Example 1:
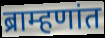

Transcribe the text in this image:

ब्राम्हणांत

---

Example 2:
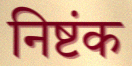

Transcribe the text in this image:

निष्टंक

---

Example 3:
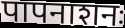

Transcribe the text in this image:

पापनाशनः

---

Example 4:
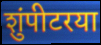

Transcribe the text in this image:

शुंपीटरया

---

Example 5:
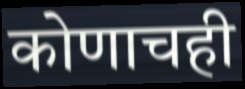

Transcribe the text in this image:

कोणाचही